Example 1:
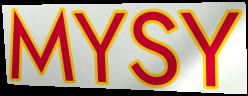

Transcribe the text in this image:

MYSY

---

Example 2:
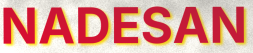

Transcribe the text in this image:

NADESAN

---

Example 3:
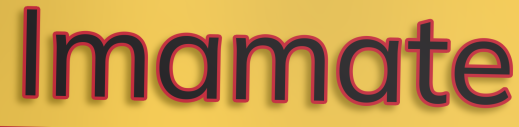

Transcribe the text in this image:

Imamate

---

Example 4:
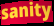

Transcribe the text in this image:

sanity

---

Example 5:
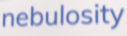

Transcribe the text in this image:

nebulosity